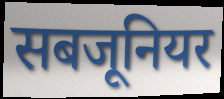
सबजूनियर